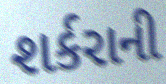
શર્કરાની